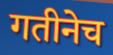
गतीनेच